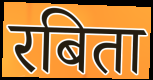
रबिता